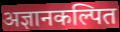
अज्ञानकल्पित